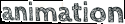
animation